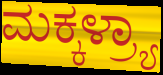
ಮಕ್ಕಳ್ರ್ಯಾ